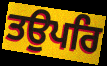
ਤਉਪਰਿ